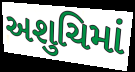
અશુચિમાં